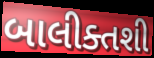
બાલીક્તશી